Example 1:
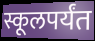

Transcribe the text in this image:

स्कूलपर्यंत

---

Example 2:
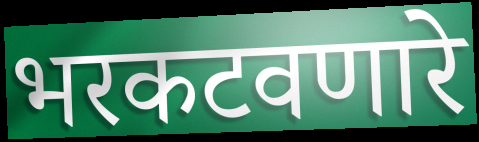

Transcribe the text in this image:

भरकटवणारे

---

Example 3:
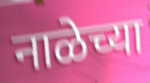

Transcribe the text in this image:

नाळेच्या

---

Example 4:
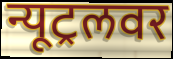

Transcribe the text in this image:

न्यूट्रलवर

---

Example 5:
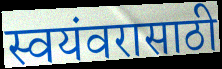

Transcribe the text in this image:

स्वयंवरासाठी